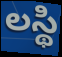
లస్థి